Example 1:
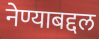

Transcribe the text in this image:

नेण्याबद्दल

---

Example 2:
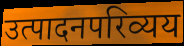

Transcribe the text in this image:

उत्पादनपरिव्यय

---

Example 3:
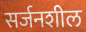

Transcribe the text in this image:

सर्जनशील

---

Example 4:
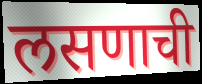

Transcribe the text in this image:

लसणाची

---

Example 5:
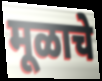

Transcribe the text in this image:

मूळाचे